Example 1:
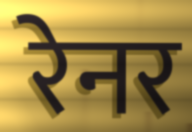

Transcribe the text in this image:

रेनर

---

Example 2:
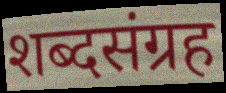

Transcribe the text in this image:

शब्दसंग्रह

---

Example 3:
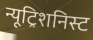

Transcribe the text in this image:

न्‍यूट्रिशनिस्‍ट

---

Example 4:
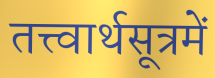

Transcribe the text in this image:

तत्त्वार्थसूत्रमें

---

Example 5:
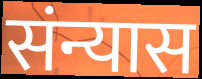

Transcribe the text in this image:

संन्यास